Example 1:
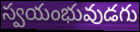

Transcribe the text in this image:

స్వయంభువుడగు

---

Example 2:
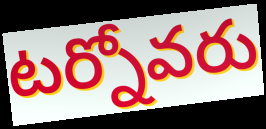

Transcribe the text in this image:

టర్నోవరు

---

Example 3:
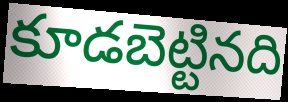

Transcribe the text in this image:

కూడబెట్టినది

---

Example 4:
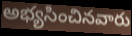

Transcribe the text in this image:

అభ్యసించినవారు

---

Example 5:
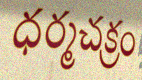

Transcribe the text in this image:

ధర్మచక్రం